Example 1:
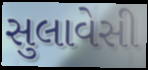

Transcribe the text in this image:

સુલાવેસી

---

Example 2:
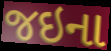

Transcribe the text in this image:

જઇના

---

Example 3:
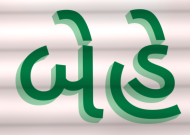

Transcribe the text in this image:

બેહે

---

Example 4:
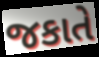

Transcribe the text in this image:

જકાતે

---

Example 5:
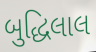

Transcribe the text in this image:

બુદ્ધિલાલ